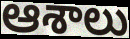
ఆశాలు